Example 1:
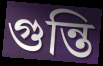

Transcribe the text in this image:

গুন্তি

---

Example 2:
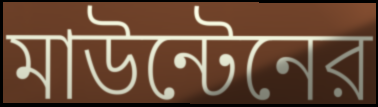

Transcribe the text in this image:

মাউন্টেনের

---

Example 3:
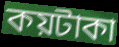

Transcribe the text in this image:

কয়টাকা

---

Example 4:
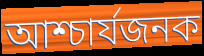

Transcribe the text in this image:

আশ্চার্যজনক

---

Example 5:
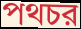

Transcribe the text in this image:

পথচর